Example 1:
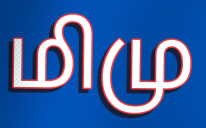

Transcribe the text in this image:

மிமு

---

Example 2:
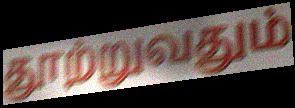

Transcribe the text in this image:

தூற்றுவதும்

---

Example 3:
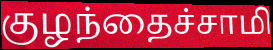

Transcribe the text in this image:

குழந்தைச்சாமி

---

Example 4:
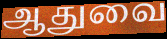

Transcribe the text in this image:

ஆதுவை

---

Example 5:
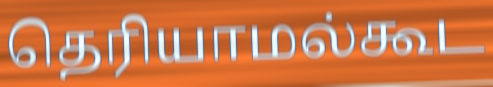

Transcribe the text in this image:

தெரியாமல்கூட